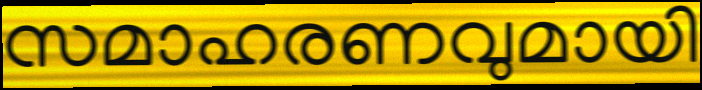
സമാഹരണവുമായി